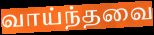
வாய்ந்தவை